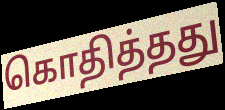
கொதித்தது